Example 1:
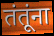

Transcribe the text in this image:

तंतूंना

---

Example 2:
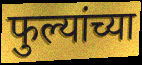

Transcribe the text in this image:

फुल्यांच्या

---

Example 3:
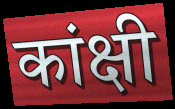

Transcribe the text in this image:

कांक्षी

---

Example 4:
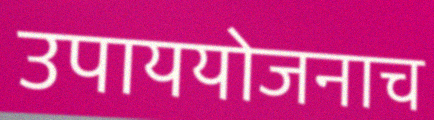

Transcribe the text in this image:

उपाययोजनाच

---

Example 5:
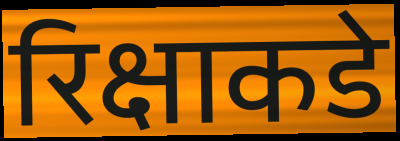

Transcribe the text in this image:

रिक्षाकडे